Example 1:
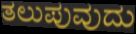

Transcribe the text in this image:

ತಲುಪುವುದು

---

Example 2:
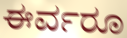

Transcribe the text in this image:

ಈರ್ವರೂ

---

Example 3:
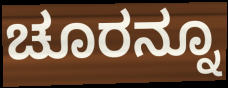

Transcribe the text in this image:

ಚೂರನ್ನೂ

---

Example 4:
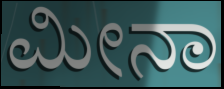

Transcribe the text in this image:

ಮೀನಾ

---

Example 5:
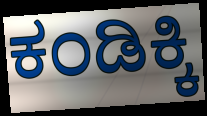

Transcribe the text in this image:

ಕಂಡಿಕ್ಕಿ